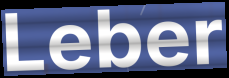
Leber